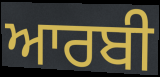
ਆਰਬੀ